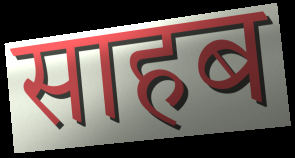
साहब